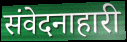
संवेदनाहारी